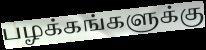
பழக்கங்களுக்கு